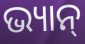
ଭ୍ୟାନ୍